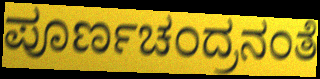
ಪೂರ್ಣಚಂದ್ರನಂತೆ